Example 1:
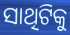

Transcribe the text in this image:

ସାଥିଟିକୁ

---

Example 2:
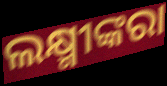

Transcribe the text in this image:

ଲକ୍ଷ୍ମୀଙ୍କରା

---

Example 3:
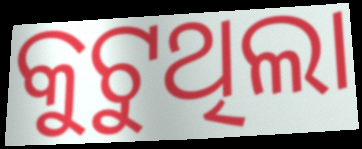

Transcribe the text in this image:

କୁଟୁଥିଲା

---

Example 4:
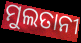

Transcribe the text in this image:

ମୁଲତାନୀ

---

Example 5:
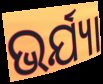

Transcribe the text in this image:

ଭର୍ଯ୍ୟା